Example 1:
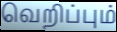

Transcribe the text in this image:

வெறிப்பும்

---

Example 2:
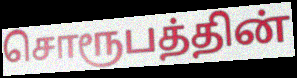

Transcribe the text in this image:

சொரூபத்தின்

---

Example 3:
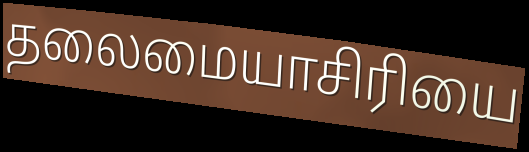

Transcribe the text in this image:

தலைமையாசிரியை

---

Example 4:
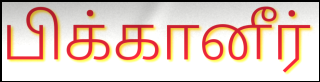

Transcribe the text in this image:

பிக்கானீர்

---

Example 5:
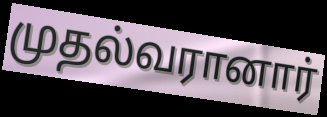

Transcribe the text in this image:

முதல்வரானார்